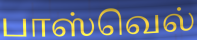
பாஸ்வெல்